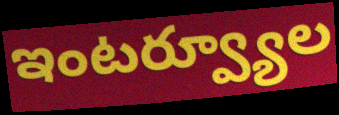
ఇంటర్వ్యూల